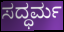
ಸದ್ಧರ್ಮ